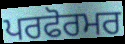
ਪਰਫੋਰਮਰ